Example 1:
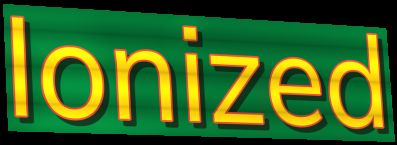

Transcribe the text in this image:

Ionized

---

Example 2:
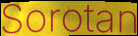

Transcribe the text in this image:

Sorotan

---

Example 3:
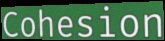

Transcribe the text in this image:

Cohesion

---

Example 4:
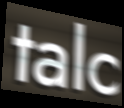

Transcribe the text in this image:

talc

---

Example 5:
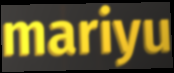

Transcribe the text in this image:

mariyu